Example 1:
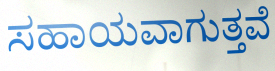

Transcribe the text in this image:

ಸಹಾಯವಾಗುತ್ತವೆ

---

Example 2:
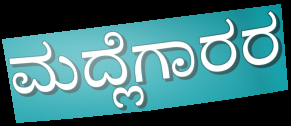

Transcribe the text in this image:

ಮದ್ಲೆಗಾರರ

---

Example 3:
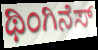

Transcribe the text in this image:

ಥಿಂಗಿನೆಸ್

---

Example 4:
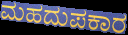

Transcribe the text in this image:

ಮಹದುಪಕಾರ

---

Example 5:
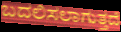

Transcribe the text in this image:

ಬದಲಿಸಲಾಗುತ್ತದೆ